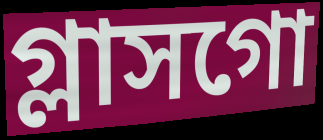
গ্লাসগো